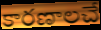
కారణాలచే